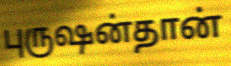
புருஷன்தான்